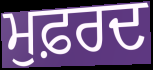
ਮੁਫ਼ਰਦ